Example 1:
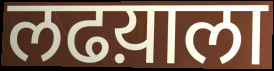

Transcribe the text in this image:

लढय़ाला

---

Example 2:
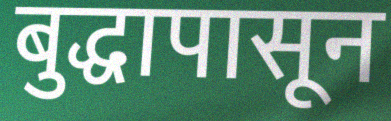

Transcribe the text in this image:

बुद्धापासून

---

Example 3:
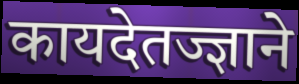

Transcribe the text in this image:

कायदेतज्ज्ञाने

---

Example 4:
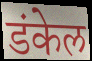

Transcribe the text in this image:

डंकेल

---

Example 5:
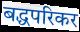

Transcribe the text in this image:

बद्धपरिकर